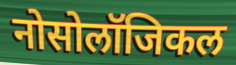
नोसोलॉजिकल